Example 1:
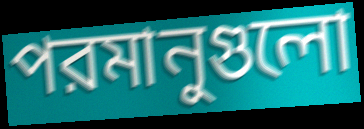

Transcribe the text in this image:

পরমানুগুলো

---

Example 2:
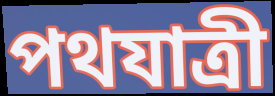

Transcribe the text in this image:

পথযাত্রী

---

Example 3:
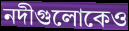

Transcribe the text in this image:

নদীগুলোকেও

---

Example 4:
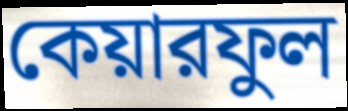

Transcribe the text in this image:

কেয়ারফুল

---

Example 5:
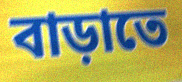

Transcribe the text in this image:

বাড়াতে